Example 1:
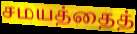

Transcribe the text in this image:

சமயத்தைத்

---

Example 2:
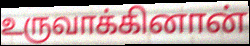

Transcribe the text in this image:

உருவாக்கினான்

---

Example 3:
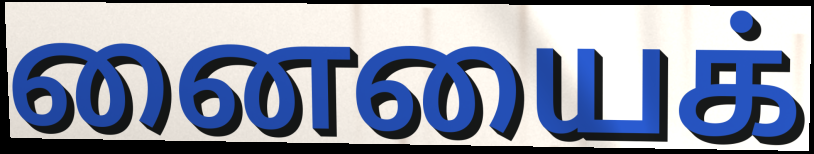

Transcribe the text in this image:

னையைக்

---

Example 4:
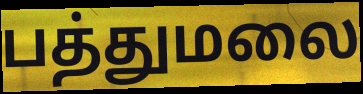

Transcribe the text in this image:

பத்துமலை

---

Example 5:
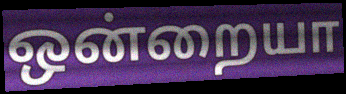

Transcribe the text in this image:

ஒன்றையா